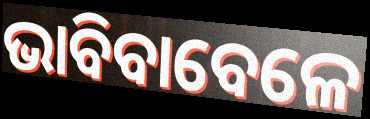
ଭାବିବାବେଳେ